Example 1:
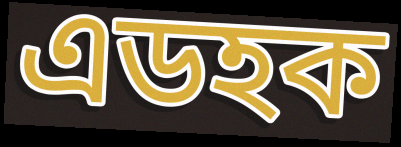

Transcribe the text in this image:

এডহক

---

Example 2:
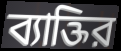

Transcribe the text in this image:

ব্যাক্তির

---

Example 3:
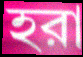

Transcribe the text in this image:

হরা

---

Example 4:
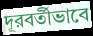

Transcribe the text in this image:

দূরবর্তীভাবে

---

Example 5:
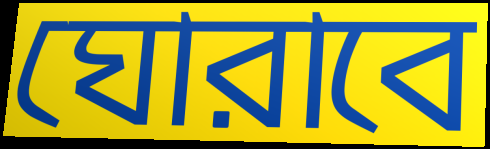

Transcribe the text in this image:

ঘোরাবে